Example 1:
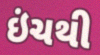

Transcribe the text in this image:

ઇંચથી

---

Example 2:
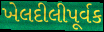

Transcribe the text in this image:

ખેલદીલીપૂર્વક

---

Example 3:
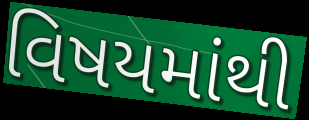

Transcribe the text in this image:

વિષયમાંથી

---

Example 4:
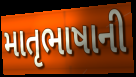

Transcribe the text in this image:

માતૃભાષાની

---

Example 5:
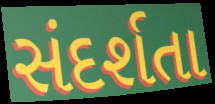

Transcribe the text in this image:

સંદર્શતા